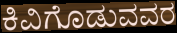
ಕಿವಿಗೊಡುವವರ